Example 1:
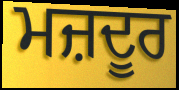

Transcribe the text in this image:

ਮਜ਼ਦੂਰ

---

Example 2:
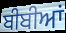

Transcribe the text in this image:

ਬੀਬੀਆਂ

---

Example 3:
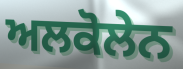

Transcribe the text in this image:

ਅਲਕੋਲੇਨ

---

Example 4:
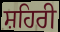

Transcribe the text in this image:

ਸ਼ਹਿਰੀ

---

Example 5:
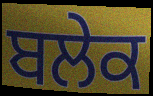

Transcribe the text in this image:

ਬਲੇਕ